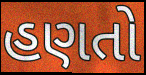
હણતો